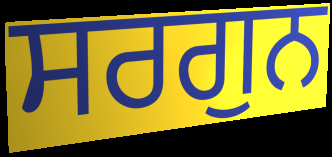
ਸਰਗੁਨ